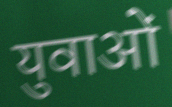
युवाओं